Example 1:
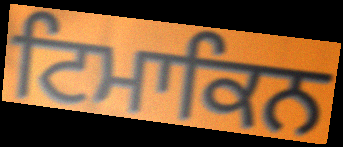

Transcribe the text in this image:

ਟਿਮਾਕਿਨ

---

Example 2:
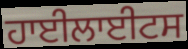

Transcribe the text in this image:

ਹਾਈਲਾਈਟਸ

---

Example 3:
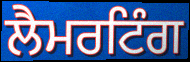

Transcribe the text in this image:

ਲੈਮਰਟਿੰਗ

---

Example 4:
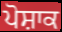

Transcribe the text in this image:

ਪੋਸ਼ਾਕ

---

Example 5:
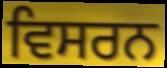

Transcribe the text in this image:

ਵਿਸਰਨ